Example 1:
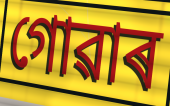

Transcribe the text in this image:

গোৱাৰ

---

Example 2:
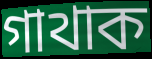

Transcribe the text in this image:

গাথাক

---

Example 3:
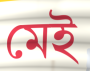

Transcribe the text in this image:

মেই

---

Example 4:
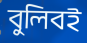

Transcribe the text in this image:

বুলিবই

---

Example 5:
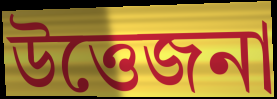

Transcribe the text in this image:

উত্তেজনা